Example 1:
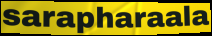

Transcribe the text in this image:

sarapharaala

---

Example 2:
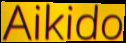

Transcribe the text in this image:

Aikido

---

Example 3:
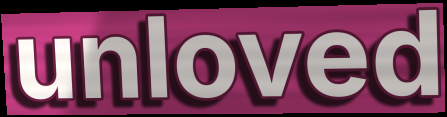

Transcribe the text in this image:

unloved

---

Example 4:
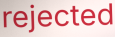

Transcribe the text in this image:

rejected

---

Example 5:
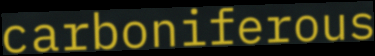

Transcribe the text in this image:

carboniferous